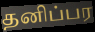
தனிப்பர